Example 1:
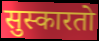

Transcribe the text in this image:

सुस्कारतो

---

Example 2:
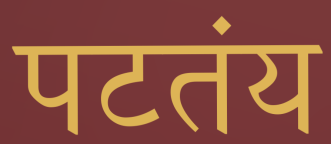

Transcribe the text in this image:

पटतंय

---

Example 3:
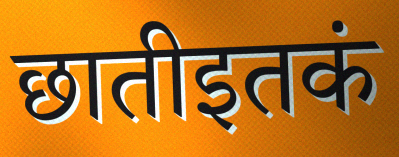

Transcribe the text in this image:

छातीइतकं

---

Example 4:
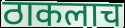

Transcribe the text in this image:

ठाकलाच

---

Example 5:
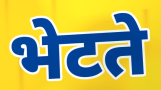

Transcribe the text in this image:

भेटते